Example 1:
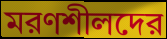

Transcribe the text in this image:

মরণশীলদের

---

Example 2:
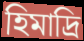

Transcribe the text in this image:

হিমাদ্রি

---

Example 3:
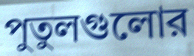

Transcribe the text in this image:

পুতুলগুলোর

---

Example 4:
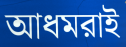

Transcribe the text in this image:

আধমরাই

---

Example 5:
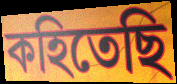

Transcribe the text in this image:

কহিতেছি